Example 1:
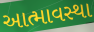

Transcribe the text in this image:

આત્માવસ્થા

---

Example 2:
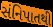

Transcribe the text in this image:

સંનિપાતથી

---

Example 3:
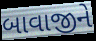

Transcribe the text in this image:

બાવાજીને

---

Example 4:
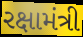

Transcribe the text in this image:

રક્ષામંત્રી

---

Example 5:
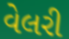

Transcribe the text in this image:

વેલરી